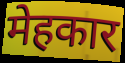
मेहकार